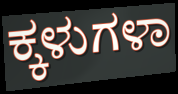
ಕ್ಕಳುಗಳಾ